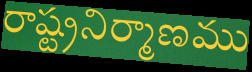
రాష్ట్రనిర్మాణము